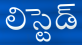
లిస్టెడ్